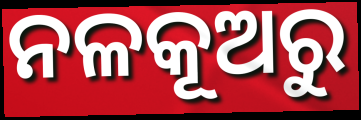
ନଳକୂଅରୁ